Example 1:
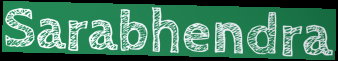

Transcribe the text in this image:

Sarabhendra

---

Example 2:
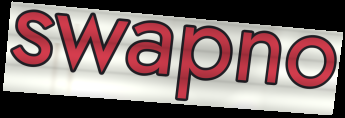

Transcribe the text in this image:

swapno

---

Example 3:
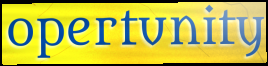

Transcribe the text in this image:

opertunity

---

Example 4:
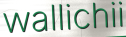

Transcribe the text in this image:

wallichii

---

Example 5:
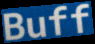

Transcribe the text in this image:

Buff